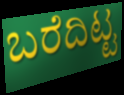
ಬರೆದಿಟ್ಟ